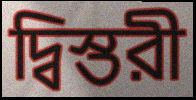
দ্বিস্তরী